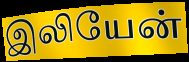
இலியேன்